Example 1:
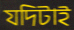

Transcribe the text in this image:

যদিটাই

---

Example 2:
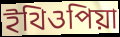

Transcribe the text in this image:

ইথিওপিয়া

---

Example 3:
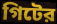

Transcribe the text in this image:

গিটের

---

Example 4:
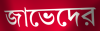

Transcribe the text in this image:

জাভেদের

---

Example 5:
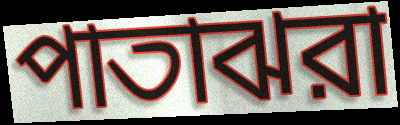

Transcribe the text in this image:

পাতাঝরা